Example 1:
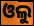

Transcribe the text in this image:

ଓଲୁ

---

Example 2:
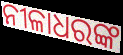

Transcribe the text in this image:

ନୀଳାଧରଙ୍କ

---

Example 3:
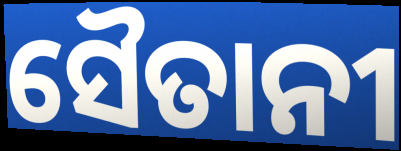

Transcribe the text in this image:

ସୈତାନୀ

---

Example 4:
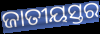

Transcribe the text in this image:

ଜାତୀୟସ୍ତର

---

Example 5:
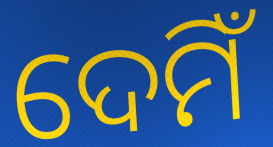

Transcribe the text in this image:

ଦେମିଁ